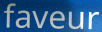
faveur